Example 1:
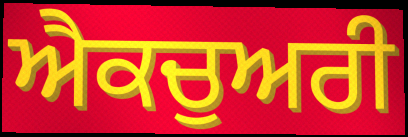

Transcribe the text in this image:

ਐਕਚੁਅਰੀ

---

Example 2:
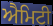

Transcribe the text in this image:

ਐਮਿਟੀ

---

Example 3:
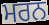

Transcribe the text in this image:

ਮਰਨ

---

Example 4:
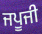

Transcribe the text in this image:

ਜਪੂਜੀ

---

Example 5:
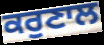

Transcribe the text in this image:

ਕਰੁਣਾਲ